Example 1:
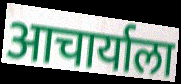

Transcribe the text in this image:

आचार्याला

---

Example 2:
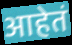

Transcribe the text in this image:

आहेतं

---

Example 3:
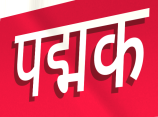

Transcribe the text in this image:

पद्मक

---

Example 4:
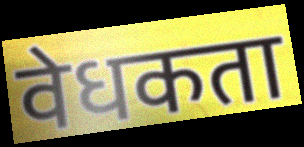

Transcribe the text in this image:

वेधकता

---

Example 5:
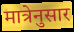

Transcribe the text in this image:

मात्रेनुसार